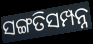
ସଙ୍ଗତିସମ୍ପନ୍ନ